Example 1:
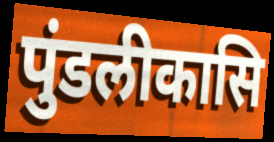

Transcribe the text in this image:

पुंडलीकासि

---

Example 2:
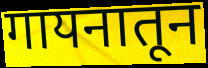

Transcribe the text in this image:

गायनातून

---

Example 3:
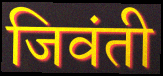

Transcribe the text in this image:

जिवंती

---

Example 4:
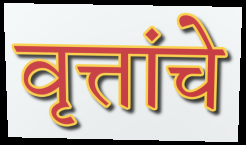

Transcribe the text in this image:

वृत्तांचे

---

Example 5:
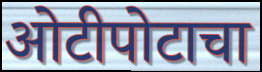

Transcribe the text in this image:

ओटीपोटाचा